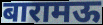
बारामऊ